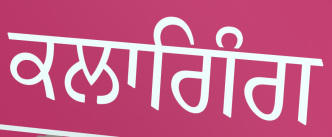
ਕਲਾਗਿੰਗ